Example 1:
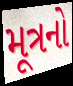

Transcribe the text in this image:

મૂત્રનો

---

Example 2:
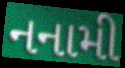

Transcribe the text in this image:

નનામી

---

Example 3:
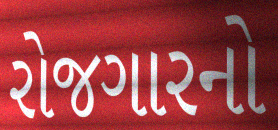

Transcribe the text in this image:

રોજગારનો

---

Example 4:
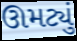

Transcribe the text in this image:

ઊમટ્યું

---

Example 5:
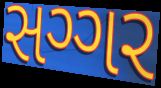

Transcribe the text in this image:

સગ્ગર